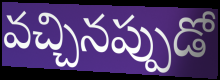
వచ్చినప్పుడో